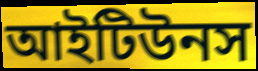
আইটিউনস